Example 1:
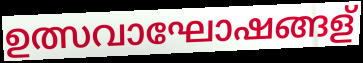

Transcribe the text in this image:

ഉത്സവാഘോഷങ്ങള്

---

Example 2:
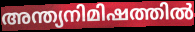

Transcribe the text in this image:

അന്ത്യനിമിഷത്തിൽ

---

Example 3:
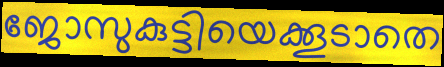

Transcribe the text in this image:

ജോസുകുട്ടിയെക്കൂടാതെ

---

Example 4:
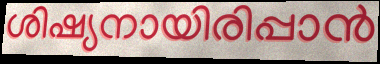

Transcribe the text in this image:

ശിഷ്യനായിരിപ്പാൻ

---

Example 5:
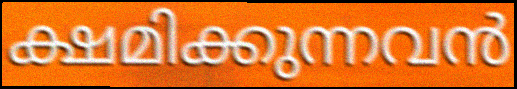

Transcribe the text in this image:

ക്ഷമിക്കുന്നവൻ